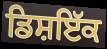
ਡਿਸ਼ਇੱਕ